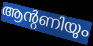
ആന്റണിയും